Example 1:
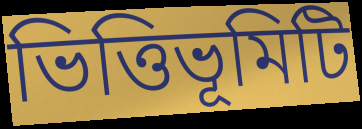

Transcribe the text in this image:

ভিত্তিভূমিটি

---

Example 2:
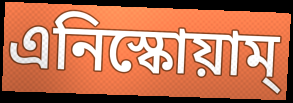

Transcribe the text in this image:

এনিস্কোয়াম্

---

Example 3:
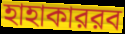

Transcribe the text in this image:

হাহাকাররব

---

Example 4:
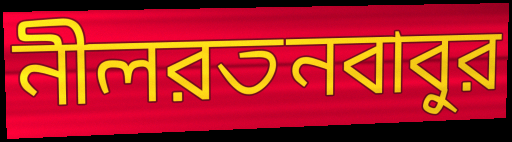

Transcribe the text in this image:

নীলরতনবাবুর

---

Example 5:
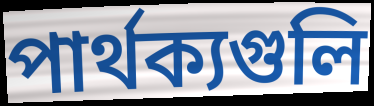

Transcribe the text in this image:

পার্থক্যগুলি